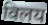
विलय